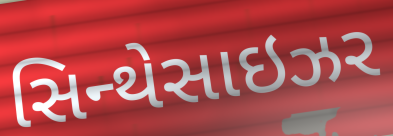
સિન્થેસાઇઝર